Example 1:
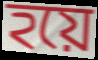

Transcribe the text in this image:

হয়ে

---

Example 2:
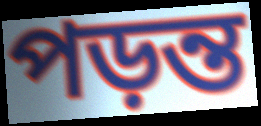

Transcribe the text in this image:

পড়ন্ত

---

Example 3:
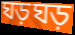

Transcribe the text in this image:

ঘড়ঘড়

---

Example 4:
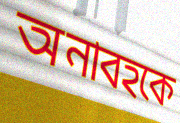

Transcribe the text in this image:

অনাবহকে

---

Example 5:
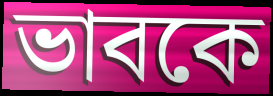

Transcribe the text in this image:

ভাবকে